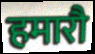
हमारौ